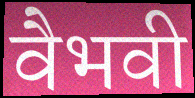
वैभवी